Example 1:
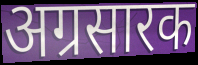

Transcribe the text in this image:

अग्रसारक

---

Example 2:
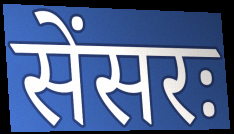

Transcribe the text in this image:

सेंसरः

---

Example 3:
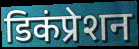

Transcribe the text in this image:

डिकंप्रेशन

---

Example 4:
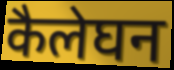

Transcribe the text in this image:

कैलेघन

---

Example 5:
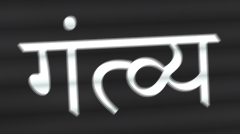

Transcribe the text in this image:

गंत्व्य